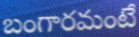
బంగారమంటే